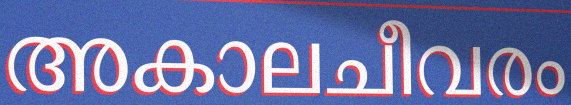
അകാലചീവരം